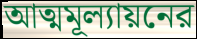
আত্মমূল্যায়নের